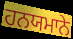
ਹਨਯਮਾਨੇ